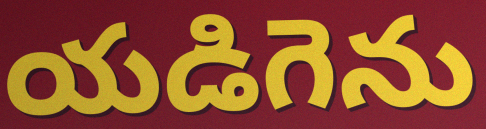
యడిగెను